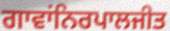
ਗਾਵਾਂਨਿਰਪਾਲਜੀਤ